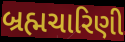
બ્રહ્મચારિણી